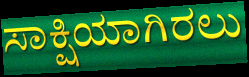
ಸಾಕ್ಷಿಯಾಗಿರಲು